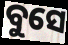
ବୁସେ